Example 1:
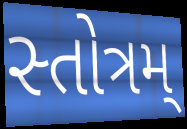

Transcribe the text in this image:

સ્તોત્રમ્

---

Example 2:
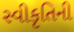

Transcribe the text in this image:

સ્વીકૃતિની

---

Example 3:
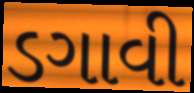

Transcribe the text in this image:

ડગાવી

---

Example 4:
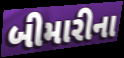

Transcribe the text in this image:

બીમારીના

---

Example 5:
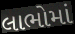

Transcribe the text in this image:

લાભોમાં